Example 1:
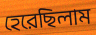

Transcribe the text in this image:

হেরেছিলাম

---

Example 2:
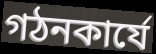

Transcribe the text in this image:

গঠনকার্যে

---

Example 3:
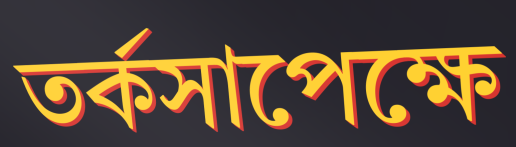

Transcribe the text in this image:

তর্কসাপেক্ষে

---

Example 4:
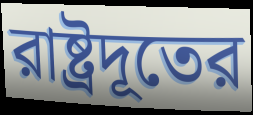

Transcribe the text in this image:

রাষ্ট্রদূতের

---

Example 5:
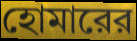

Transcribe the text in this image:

হোমারের